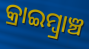
କ୍ରାଇମ୍ବ୍ରାଞ୍ଚ